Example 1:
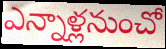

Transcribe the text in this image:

ఎన్నాళ్లనుంచో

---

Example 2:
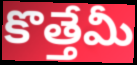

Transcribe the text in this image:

కొత్తేమీ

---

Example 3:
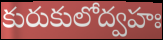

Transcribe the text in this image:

కురుకులోద్వహః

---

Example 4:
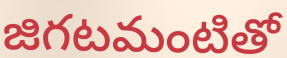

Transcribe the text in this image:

జిగటమంటితో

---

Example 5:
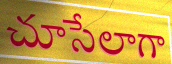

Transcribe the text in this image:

చూసేలాగా